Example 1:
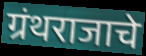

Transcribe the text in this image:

ग्रंथराजाचे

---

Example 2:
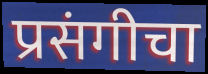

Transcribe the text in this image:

प्रसंगीचा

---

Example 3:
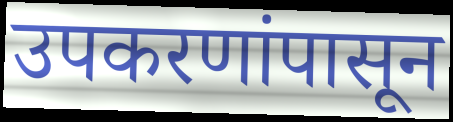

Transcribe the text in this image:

उपकरणांपासून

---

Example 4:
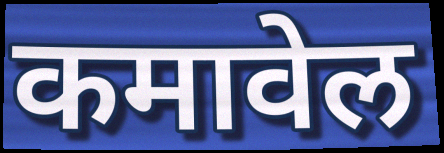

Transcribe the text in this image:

कमावेल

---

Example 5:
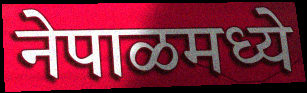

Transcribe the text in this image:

नेपाळमध्ये